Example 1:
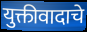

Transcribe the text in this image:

युक्तीवादाचे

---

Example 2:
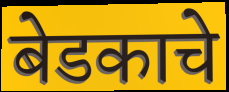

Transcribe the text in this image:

बेडकाचे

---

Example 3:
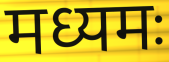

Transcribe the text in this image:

मध्यमः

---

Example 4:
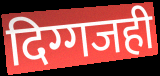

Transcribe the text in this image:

दिग्गजही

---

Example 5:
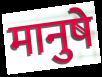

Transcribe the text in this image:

मानुषे